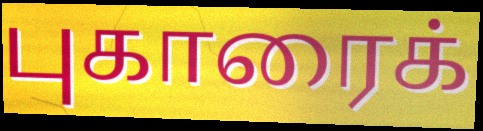
புகாரைக்